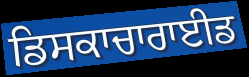
ਡਿਸਕਾਚਾਰਾਈਡ